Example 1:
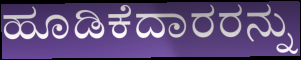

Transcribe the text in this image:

ಹೂಡಿಕೆದಾರರನ್ನು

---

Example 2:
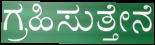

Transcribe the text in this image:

ಗ್ರಹಿಸುತ್ತೇನೆ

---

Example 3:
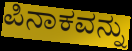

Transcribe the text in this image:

ಪಿನಾಕವನ್ನು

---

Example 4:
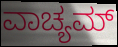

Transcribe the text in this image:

ವಾಚ್ಯಮ್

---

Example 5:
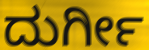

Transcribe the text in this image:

ದುರ್ಗೀ